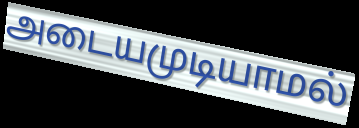
அடையமுடியாமல்